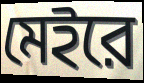
মেইরে